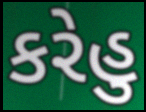
કરેહુ